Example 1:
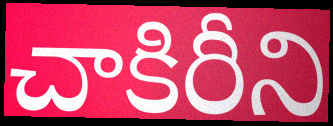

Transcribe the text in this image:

చాకిరీని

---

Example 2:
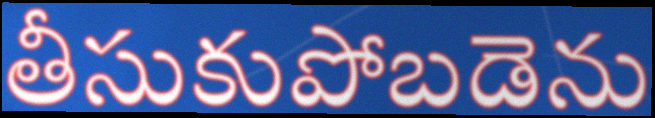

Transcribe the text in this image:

తీసుకుపోబడెను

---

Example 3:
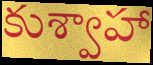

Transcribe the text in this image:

కుశ్వాహా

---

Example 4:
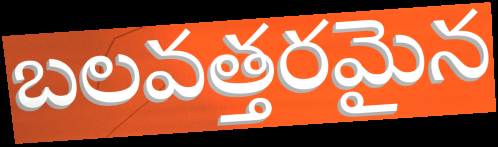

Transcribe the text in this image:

బలవత్తరమైన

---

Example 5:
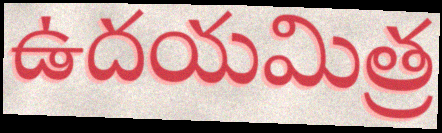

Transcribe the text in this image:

ఉదయమిత్ర